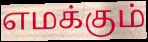
எமக்கும்